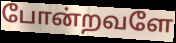
போன்றவளே